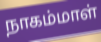
நாகம்மாள்